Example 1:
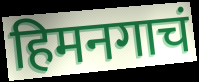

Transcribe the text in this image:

हिमनगाचं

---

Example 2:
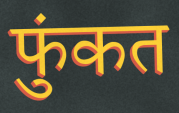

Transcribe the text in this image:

फुंकत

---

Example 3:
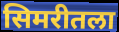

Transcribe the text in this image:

सिमरीतला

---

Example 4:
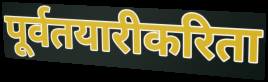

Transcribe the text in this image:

पूर्वतयारीकरिता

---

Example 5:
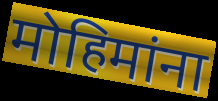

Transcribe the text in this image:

मोहिमांना